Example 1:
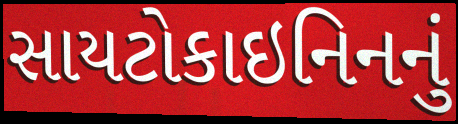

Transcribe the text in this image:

સાયટોકાઇનિનનું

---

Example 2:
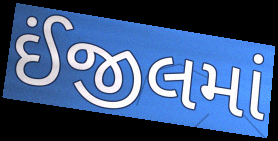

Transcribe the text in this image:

ઈંજીલમાં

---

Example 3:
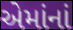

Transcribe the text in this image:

એમાંનાં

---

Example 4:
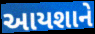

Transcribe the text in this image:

આયશાને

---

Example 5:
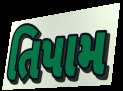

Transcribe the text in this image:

તિપામ